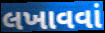
લખાવવાં